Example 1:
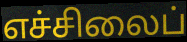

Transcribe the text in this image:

எச்சிலைப்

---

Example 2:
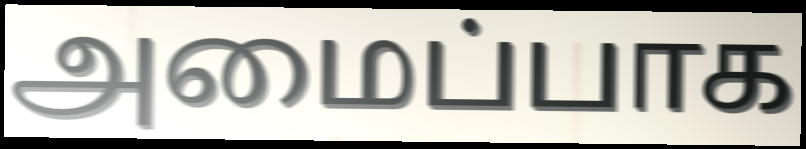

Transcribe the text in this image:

அமைப்பாக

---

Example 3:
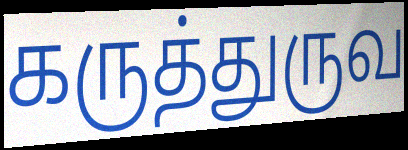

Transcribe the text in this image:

கருத்துருவ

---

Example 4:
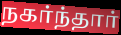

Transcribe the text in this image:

நகர்ந்தார்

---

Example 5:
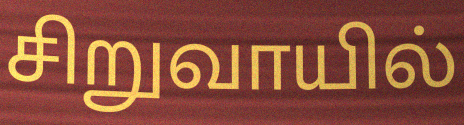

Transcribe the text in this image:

சிறுவாயில்